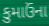
કુમાઉંના